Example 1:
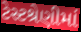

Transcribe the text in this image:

ટેસ્ટશ્રેણીમાં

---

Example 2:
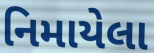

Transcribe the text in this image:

નિમાયેલા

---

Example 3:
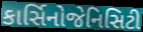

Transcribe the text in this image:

કાર્સિનોજેનિસિટી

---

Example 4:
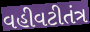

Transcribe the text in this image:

વહીવટીતંત્ર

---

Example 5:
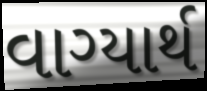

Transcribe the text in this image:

વાગ્યાર્થ